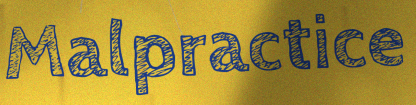
Malpractice